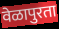
वेळापुरता